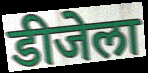
डीजेला